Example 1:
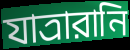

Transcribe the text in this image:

যাত্রারানি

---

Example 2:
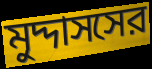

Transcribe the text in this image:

মুদ্দাসসের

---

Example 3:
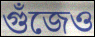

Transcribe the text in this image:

গুঁজেও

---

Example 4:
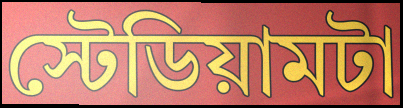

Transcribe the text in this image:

স্টেডিয়ামটা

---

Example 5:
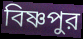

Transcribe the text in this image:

বিষ্ণপুর